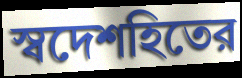
স্বদেশহিতের